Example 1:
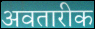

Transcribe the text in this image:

अवतारीक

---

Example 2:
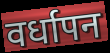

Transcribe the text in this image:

वर्धापन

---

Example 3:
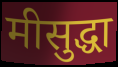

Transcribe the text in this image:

मीसुद्धा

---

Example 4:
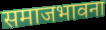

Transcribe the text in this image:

समाजभावना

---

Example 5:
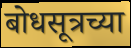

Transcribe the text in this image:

बोधसूत्रच्या